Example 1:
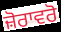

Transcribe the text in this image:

ਜ਼ੋਰਾਵਰੋ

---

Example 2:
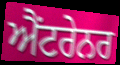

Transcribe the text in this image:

ਐਂਟਰੇਨਰ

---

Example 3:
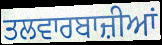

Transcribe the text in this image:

ਤਲਵਾਰਬਾਜ਼ੀਆਂ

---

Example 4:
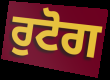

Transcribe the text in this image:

ਰੁਟੋਗ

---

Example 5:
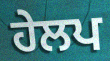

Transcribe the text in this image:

ਹੇਲਪ